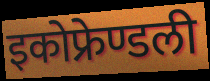
इकोफ्रेण्डली